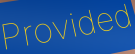
Provided